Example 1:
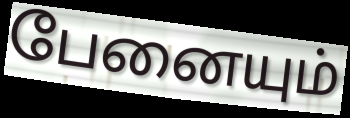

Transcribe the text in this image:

பேனையும்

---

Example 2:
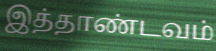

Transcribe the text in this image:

இத்தாண்டவம்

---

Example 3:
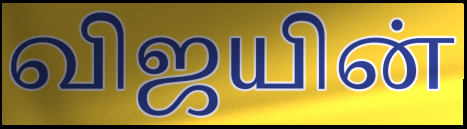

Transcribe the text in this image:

விஜயின்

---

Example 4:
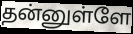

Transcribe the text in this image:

தன்னுள்ளே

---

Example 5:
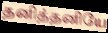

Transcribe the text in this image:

தனித்தனியே